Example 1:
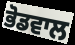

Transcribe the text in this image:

ਭੋਡਵਾਲ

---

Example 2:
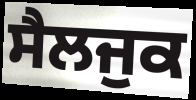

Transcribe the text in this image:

ਸੈਲਜੁਕ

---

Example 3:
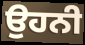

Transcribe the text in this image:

ਉਹਨੀ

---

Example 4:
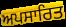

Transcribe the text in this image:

ਅਪਸਾਰਿਤ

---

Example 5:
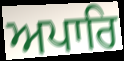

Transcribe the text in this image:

ਅਪਾਰਿ